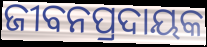
ଜୀବନପ୍ରଦାୟକ